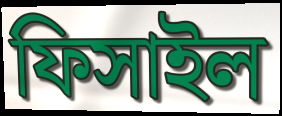
ফিসাইল